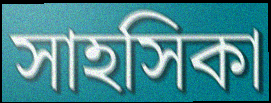
সাহসিকা